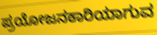
ಪ್ರಯೋಜನಕಾರಿಯಾಗುವ